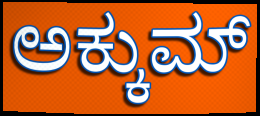
ಅಕ್ಕುಮ್